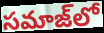
సమాజ్‌లో